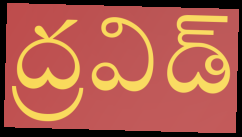
ద్రవిడ్